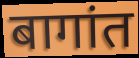
बागांत